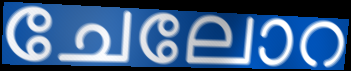
ചേലോറ